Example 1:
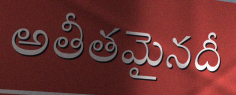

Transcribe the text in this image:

అతీతమైనదీ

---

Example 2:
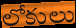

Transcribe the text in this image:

లోకులు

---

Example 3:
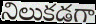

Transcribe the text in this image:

నిలుకడగా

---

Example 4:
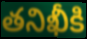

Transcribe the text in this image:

తనిఖీకి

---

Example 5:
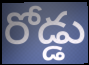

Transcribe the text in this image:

రోడ్డు